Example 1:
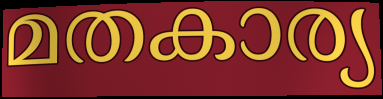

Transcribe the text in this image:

മതകാര്യ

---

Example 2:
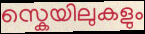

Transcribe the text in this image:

സ്കെയിലുകളും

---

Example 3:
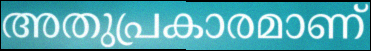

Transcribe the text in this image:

അതുപ്രകാരമാണ്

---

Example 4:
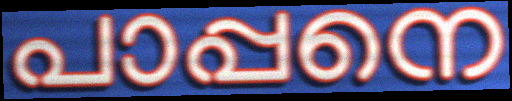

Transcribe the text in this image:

പാപ്പനെ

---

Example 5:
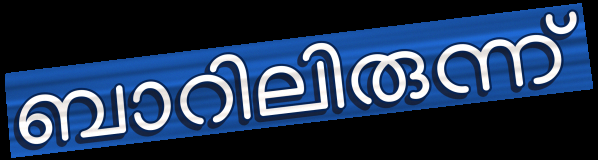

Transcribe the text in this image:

ബാറിലിരുന്ന്